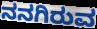
ನನಗಿರುವ